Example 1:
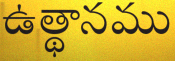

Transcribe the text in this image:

ఉత్థానము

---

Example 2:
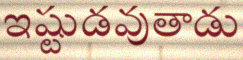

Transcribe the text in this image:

ఇష్టుడవుతాడు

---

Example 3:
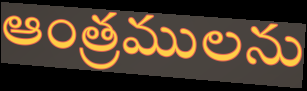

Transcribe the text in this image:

ఆంత్రములను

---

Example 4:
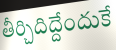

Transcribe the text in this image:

తీర్చిదిద్దేందుకే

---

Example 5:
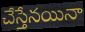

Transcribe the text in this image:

చేస్తేనయినా